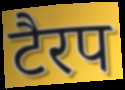
टैरप